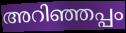
അറിഞ്ഞപ്പം